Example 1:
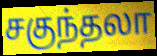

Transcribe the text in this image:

சகுந்தலா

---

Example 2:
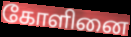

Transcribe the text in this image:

கோளினை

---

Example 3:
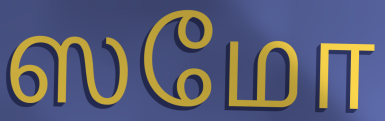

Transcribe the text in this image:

ஸமோ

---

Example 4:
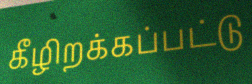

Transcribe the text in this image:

கீழிறக்கப்பட்டு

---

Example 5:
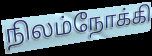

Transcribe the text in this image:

நிலம்நோக்கி